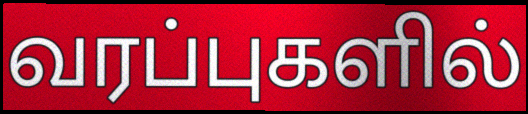
வரப்புகளில்